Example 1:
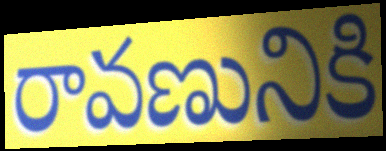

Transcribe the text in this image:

రావణునికి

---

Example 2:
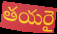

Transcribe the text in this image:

తయరై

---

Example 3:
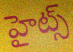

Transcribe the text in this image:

హైట్స్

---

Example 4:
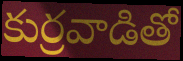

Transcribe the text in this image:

కుర్రవాడితో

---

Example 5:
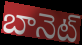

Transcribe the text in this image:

బానెట్